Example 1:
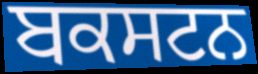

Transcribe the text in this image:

ਬਕਸਟਨ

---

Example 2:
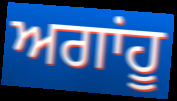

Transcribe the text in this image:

ਅਗਾਂਹੂ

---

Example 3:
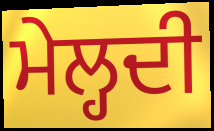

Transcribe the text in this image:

ਮੇਲ੍ਹਦੀ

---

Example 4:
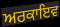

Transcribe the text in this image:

ਅਰਕਾਇਵ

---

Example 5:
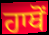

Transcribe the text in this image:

ਹਾਥੋਂ